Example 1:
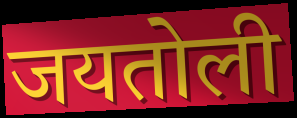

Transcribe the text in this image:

जयतोली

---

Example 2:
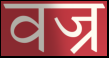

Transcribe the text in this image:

वज्र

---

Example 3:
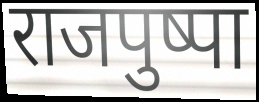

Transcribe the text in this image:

राजपुष्पा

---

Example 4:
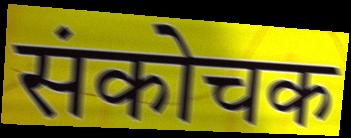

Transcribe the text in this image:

संकोचक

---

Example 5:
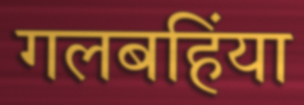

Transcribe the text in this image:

गलबहिंया